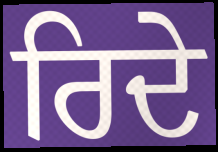
ਰਿਦੇ